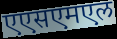
एएसएमएल